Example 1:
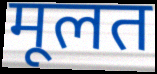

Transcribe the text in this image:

मूलत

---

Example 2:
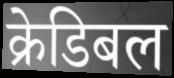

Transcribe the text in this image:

क्रेडिबल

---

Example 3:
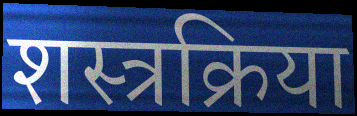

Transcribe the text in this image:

शस्त्रक्रिया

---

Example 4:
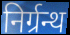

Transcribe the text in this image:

निर्ग्रन्थ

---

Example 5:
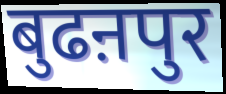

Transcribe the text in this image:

बुढऩपुर